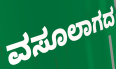
ವಸೂಲಾಗದ